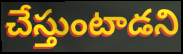
చేస్తుంటాడని